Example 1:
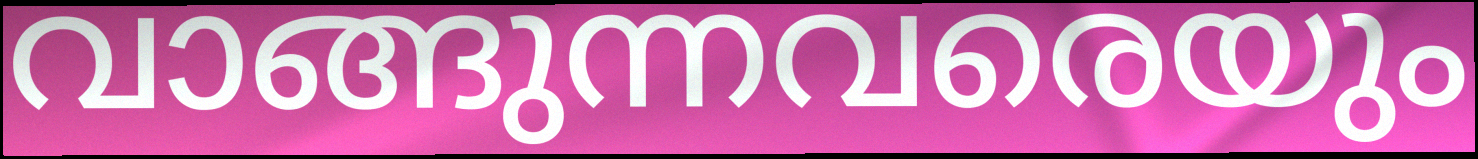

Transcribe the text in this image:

വാങ്ങുന്നവരെയും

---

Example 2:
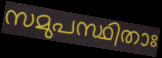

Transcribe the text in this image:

സമുപസ്ഥിതാഃ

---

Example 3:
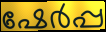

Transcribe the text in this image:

ഷേർപ്പ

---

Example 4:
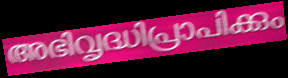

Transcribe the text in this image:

അഭിവൃദ്ധിപ്രാപിക്കും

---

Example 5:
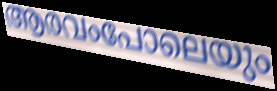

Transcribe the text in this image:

ആരവംപോലെയും